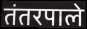
तंतरपाले